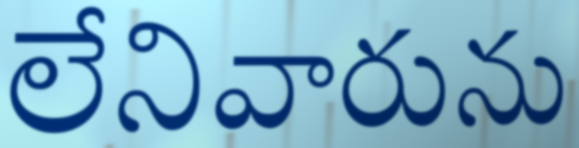
లేనివారును